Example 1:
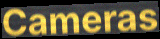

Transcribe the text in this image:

Cameras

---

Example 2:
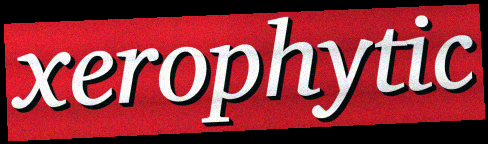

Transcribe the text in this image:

xerophytic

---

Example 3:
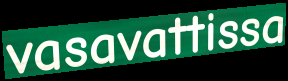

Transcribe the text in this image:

vasavattissa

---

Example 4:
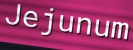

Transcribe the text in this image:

Jejunum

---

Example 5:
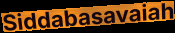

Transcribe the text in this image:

Siddabasavaiah